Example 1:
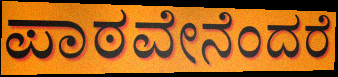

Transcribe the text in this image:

ಪಾಠವೇನೆಂದರೆ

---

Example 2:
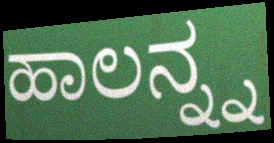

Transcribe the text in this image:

ಹಾಲನ್ನ್ನ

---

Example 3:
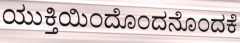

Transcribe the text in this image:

ಯುಕ್ತಿಯಿಂದೊಂದನೊಂದಕೆ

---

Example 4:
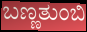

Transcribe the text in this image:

ಬಣ್ಣತುಂಬಿ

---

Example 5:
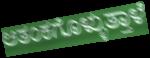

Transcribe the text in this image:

ಆತಂಕಗೊಳ್ಳುತ್ತಾಳೆ